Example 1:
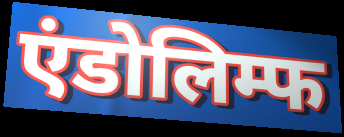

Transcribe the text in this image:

एंडोलिम्फ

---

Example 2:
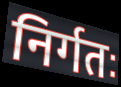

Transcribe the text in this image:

निर्गतः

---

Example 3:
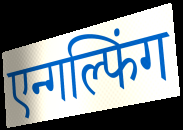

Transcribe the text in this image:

एन्गल्फिंग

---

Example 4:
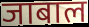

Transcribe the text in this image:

जाबाल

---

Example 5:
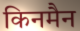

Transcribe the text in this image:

किनमैन